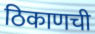
ठिकाणची